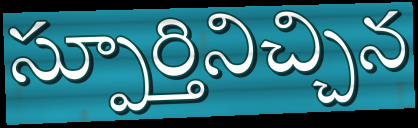
స్పూర్తినిచ్చిన